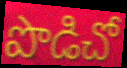
పొడిచో